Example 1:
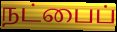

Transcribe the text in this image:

நட்பைப்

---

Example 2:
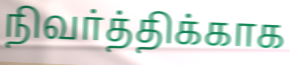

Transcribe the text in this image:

நிவர்த்திக்காக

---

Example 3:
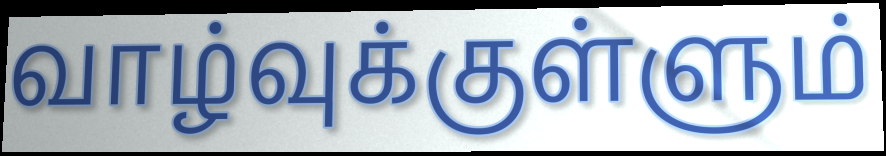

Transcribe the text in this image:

வாழ்வுக்குள்ளும்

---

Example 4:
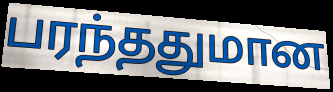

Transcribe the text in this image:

பரந்ததுமான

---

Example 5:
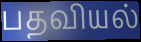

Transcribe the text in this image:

பதவியல்